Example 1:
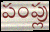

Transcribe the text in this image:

పంప్లు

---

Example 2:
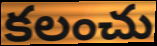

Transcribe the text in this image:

కలంచు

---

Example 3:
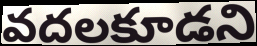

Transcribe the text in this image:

వదలకూడని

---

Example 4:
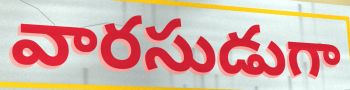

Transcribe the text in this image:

వారసుడుగా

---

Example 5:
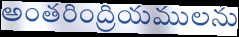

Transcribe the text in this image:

అంతరింద్రియములను